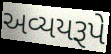
અવ્યયરૂપે